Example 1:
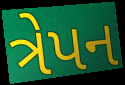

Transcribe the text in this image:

ત્રેપન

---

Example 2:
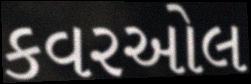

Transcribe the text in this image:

કવરઓલ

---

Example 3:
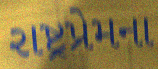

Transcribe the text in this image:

રાષ્ટ્રપ્રેમના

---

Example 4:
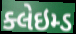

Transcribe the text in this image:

ક્લેઇમ્ડ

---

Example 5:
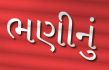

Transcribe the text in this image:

ભણીનું